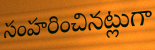
సంహరించినట్లుగా